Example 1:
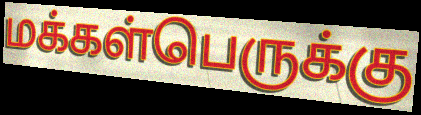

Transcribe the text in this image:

மக்கள்பெருக்கு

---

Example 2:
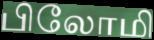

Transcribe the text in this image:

பிலோமி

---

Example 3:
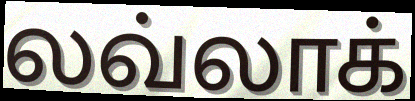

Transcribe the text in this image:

லவ்லாக்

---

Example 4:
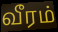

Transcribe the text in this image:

வீரம்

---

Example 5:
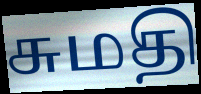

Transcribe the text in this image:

சுமதி